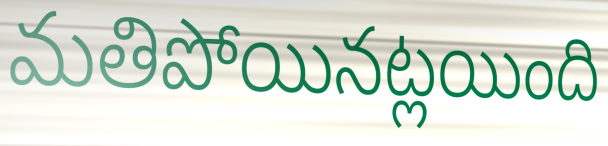
మతిపోయినట్లయింది